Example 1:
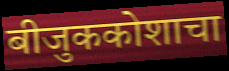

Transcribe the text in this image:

बीजुककोशाचा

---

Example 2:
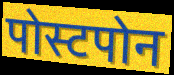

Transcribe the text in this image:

पोस्टपोन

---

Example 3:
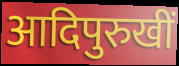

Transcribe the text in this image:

आदिपुरुखीं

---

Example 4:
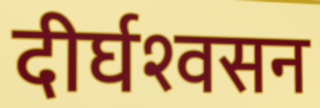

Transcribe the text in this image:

दीर्घश्वसन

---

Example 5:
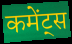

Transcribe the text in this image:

कमेंट्‌स